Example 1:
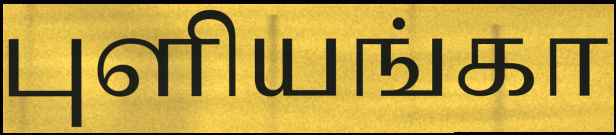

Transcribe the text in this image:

புளியங்கா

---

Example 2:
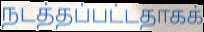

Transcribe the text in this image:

நடத்தப்பட்டதாகக்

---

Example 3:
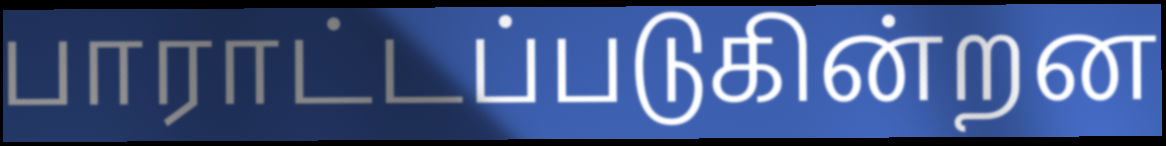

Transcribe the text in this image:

பாராட்டப்படுகின்றன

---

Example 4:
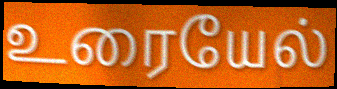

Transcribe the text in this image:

உரையேல்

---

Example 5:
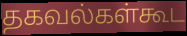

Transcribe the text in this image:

தகவல்கள்கூட